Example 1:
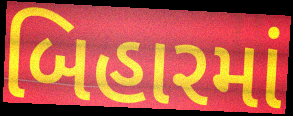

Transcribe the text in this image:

બિહારમાં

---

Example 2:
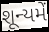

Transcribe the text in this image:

શૂન્યમેં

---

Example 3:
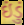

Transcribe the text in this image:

ઇંડું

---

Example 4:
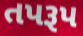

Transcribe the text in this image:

તપરૂપ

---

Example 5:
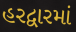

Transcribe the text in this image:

હરદ્વારમાં